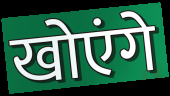
खोएंगे